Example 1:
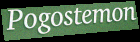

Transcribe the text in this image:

Pogostemon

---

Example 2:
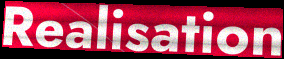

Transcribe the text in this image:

Realisation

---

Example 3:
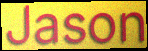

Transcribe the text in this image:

Jason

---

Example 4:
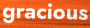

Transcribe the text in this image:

gracious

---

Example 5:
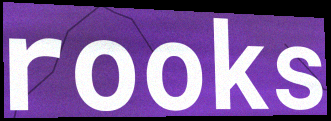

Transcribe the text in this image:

rooks